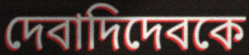
দেবাদিদেবকে